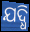
ଯଦ୍ଧି